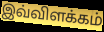
இவ்விளக்கம்